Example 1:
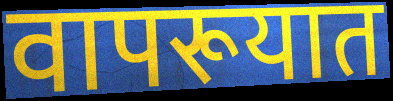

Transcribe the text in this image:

वापरूयात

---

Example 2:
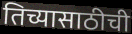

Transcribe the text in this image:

तिच्यासाठीची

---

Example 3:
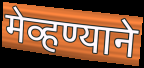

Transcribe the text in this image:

मेव्हण्याने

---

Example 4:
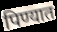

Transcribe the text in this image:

पिण्यात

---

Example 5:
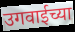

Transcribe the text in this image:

उगवाईच्या